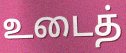
உடைத்